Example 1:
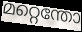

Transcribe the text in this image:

മറ്റെന്തോ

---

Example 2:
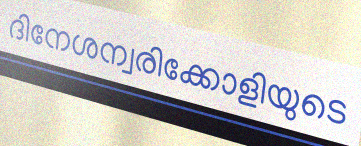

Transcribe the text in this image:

ദിനേശന്വരിക്കോളിയുടെ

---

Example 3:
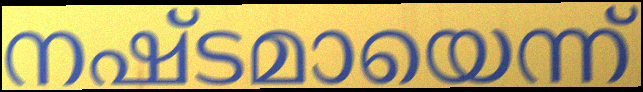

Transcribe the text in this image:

നഷ്ടമായെന്ന്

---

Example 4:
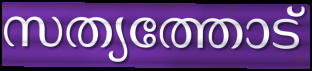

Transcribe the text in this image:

സത്യത്തോട്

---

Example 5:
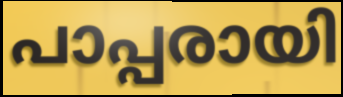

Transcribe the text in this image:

പാപ്പരായി